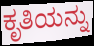
ಕೃತಿಯನ್ನು